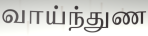
வாய்ந்துண